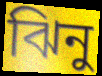
ঝিনু